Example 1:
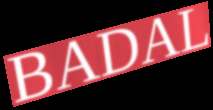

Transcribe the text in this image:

BADAL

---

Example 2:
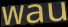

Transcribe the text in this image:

wau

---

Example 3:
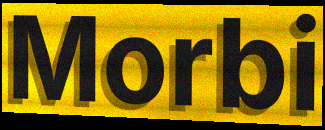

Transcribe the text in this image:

Morbi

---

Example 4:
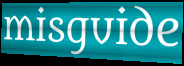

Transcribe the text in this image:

misguide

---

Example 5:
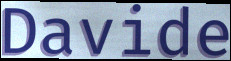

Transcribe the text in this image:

Davide